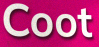
Coot